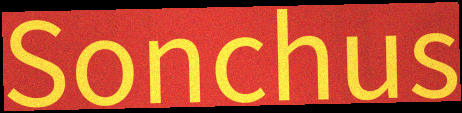
Sonchus